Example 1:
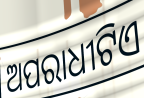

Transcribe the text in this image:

ଅପରାଧୀଟିଏ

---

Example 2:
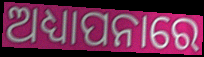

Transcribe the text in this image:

ଅଧ୍ୟାପନାରେ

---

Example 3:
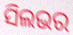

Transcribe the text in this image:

ସିଲଭର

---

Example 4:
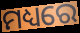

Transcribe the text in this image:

ମଧ୍ୟରେ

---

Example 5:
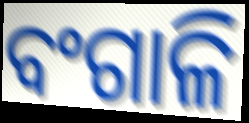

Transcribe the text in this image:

ବଂଗାଳି